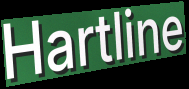
Hartline